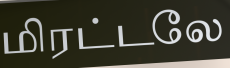
மிரட்டலே